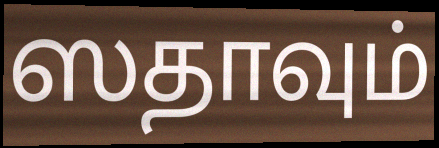
ஸதாவும்